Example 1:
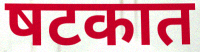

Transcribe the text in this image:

षटकात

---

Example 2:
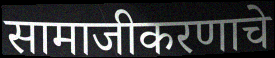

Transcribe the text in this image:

सामाजीकरणाचे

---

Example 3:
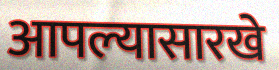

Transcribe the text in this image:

आपल्यासारखे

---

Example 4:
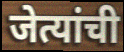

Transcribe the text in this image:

जेत्यांची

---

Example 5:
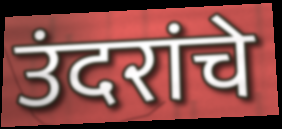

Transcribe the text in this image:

उंदरांचे